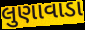
લુણાવાડા